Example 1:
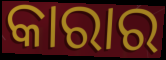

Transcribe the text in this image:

କାରାର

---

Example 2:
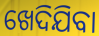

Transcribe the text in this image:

ଖେଦିଯିବା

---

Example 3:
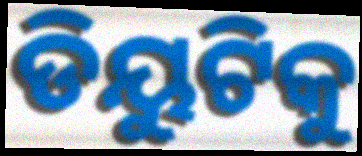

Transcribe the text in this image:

ଡିୟୁଟିକୁ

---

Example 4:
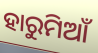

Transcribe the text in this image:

ହାରୁମିଆଁ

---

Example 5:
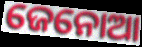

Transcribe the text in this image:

ଜେନୋଆ